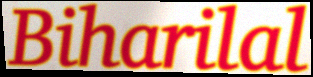
Biharilal